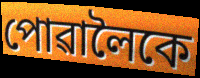
পোৱালৈকে